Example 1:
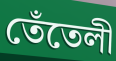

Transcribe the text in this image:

তেঁতেলী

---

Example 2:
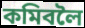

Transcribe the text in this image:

কমিবলৈ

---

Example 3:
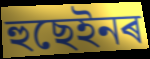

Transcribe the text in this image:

হুছেইনৰ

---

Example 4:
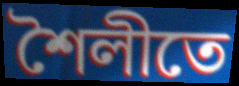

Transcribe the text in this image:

শৈলীতে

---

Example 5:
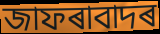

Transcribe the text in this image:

জাফৰাবাদৰ